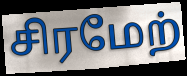
சிரமேற்